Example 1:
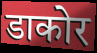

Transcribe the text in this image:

डाकोर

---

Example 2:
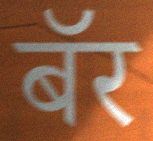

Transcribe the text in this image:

बॅर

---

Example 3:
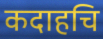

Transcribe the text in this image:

कदाहचि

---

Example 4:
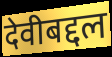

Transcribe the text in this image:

देवीबद्दल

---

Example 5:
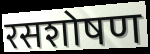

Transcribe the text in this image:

रसशोषण